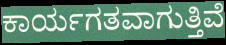
ಕಾರ್ಯಗತವಾಗುತ್ತಿವೆ